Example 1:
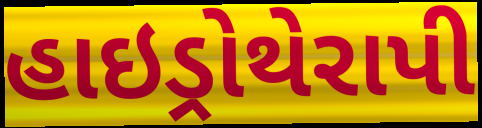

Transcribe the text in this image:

હાઇડ્રોથેરાપી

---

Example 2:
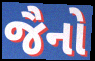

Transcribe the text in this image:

જૈનો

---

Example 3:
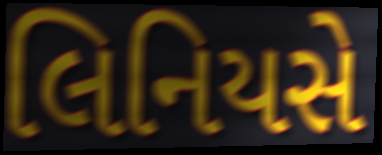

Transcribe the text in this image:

લિનિયસે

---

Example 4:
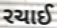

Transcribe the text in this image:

રચાઈ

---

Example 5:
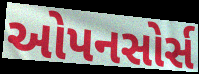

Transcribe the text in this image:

ઓપનસોર્સ